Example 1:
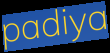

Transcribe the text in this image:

padiya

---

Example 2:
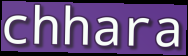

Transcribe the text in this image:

chhara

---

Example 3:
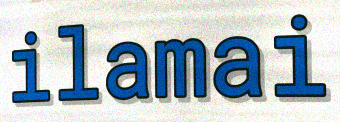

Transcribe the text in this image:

ilamai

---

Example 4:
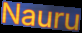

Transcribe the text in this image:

Nauru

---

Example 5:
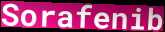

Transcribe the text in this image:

Sorafenib